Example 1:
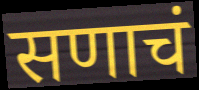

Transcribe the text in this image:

सणाचं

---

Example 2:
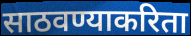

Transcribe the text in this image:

साठवण्याकरिता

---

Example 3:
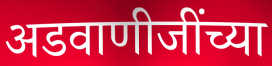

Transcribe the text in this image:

अडवाणीजींच्या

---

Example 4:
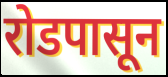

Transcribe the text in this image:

रोडपासून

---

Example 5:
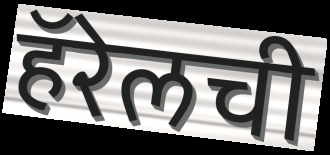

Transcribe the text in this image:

हॅरेलची